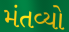
મંતવ્યો